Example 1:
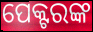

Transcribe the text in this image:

ପେକ୍ଟରଙ୍କ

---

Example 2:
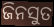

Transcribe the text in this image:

ଜିନସୁତ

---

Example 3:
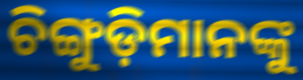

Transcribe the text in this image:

ଚିଙ୍ଗୁଡ଼ିମାନଙ୍କୁ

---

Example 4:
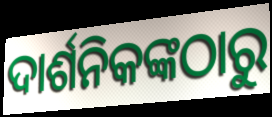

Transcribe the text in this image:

ଦାର୍ଶନିକଙ୍କଠାରୁ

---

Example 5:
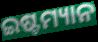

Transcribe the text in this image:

ଇଷ୍ଟମ୍ୟାନ